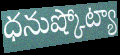
ధనుష్కోట్యా